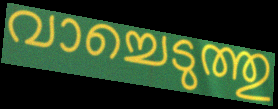
വാച്ചെടുത്തു